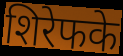
शिरेफके